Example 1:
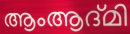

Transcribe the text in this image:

ആംആദ്മി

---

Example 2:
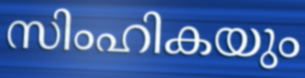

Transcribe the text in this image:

സിംഹികയും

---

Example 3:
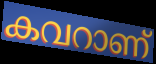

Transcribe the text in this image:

കവറാണ്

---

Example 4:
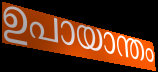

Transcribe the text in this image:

ഉപായാന്തം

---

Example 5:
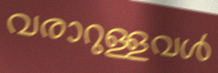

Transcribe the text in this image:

വരാറുള്ളവൾ